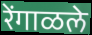
रेंगाळले